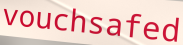
vouchsafed